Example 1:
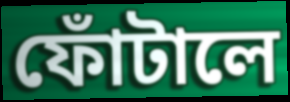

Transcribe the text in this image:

ফোঁটালে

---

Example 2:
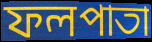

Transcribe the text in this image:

ফলপাতা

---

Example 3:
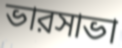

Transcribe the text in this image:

ভারসাভা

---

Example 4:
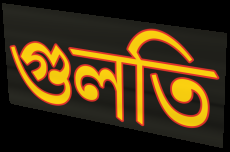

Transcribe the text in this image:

গুলতি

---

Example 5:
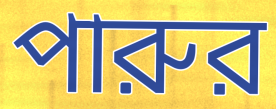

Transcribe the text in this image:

পারুর